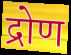
द्रोण